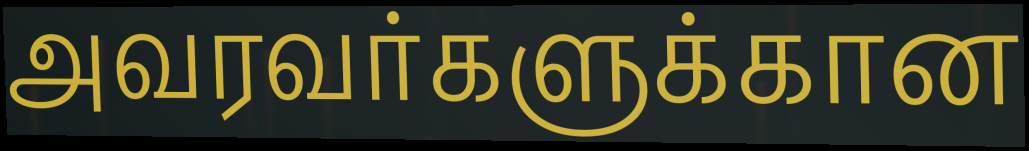
அவரவர்களுக்கான